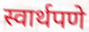
स्वार्थपणे